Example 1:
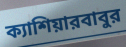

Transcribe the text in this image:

ক্যাশিয়ারবাবুর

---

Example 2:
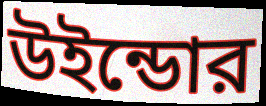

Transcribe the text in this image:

উইন্ডোর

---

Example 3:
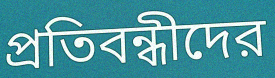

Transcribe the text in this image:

প্রতিবন্ধীদের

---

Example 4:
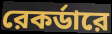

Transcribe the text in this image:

রেকর্ডারে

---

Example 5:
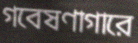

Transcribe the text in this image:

গবেষণাগারে